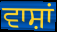
ਵਾਸ਼ਾਂ